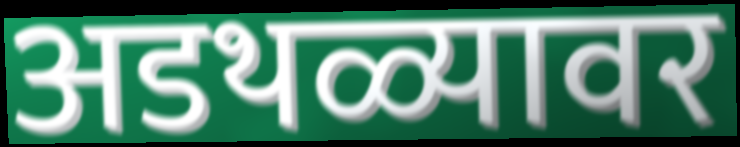
अडथळ्यावर